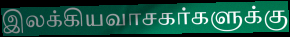
இலக்கியவாசகர்களுக்கு